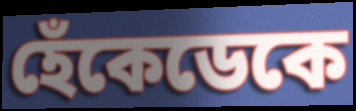
হেঁকেডেকে